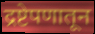
द्रष्टेपणातून